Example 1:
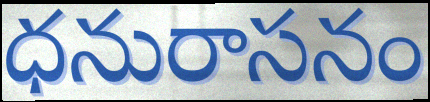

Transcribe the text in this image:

ధనురాసనం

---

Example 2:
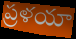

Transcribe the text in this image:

ప్రళయా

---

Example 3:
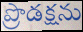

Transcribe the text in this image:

ప్రొడక్షను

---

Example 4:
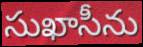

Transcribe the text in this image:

సుఖాసీను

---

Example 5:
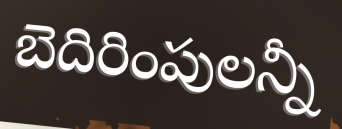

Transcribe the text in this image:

బెదిరింపులన్నీ